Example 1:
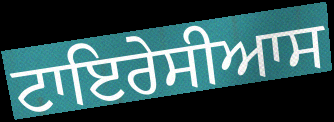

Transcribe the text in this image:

ਟਾਇਰੇਸੀਆਸ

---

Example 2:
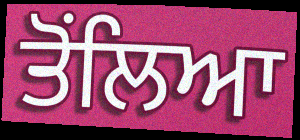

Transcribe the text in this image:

ਤੋਂਲਿਆ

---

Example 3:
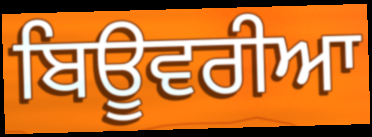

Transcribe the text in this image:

ਬਿਊਵਰੀਆ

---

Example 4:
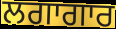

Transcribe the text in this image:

ਲਗਾਗਾਰ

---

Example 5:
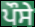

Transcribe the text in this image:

ਪੌਸੇ